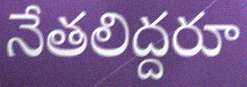
నేతలిద్దరూ